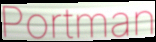
Portman